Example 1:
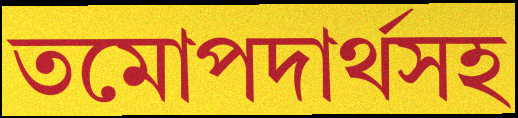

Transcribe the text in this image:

তমোপদার্থসহ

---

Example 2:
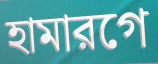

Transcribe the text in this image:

হামারগে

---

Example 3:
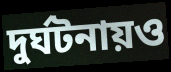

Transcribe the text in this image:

দুর্ঘটনায়ও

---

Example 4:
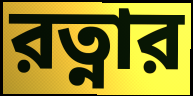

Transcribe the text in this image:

রত্নার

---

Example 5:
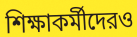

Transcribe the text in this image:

শিক্ষাকর্মীদেরও